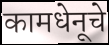
कामधेनूचे